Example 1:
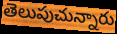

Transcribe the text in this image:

తెలుపుచున్నారు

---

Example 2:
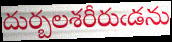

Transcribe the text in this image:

దుర్బలశరీరుఁడను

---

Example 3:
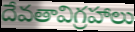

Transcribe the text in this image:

దేవతావిగ్రహాలు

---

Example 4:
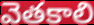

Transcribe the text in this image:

వెతకాలి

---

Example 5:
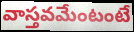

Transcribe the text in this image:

వాస్తవమేంటంటే